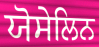
ਯੋਸੇਲਿਨ